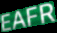
EAFR